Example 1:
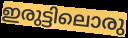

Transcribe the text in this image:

ഇരുട്ടിലൊരു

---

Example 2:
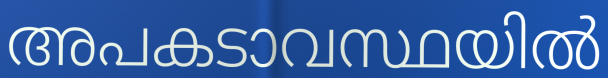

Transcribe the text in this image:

അപകടാവസ്ഥയിൽ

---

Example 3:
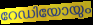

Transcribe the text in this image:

റേഡിയോയും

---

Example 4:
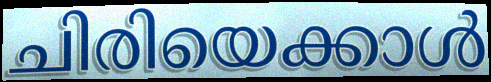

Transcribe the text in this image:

ചിരിയെക്കാൾ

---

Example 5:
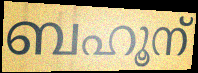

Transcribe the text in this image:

ബഹൂന്